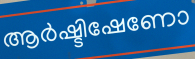
ആർഷ്ടിഷേണോ